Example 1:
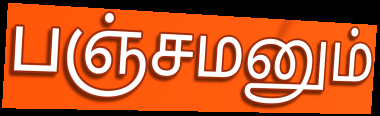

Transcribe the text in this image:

பஞ்சமனும்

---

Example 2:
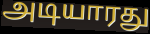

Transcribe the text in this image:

அடியாரது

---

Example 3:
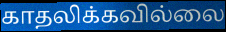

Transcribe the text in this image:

காதலிக்கவில்லை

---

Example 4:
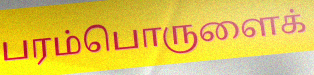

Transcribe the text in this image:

பரம்பொருளைக்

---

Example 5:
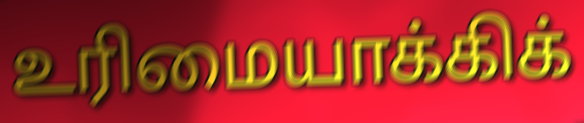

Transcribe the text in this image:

உரிமையாக்கிக்